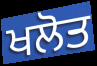
ਖਲੋਤ